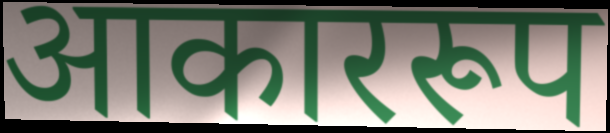
आकाररूप